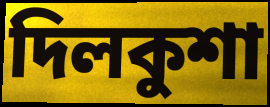
দিলকুশা